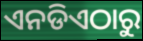
ଏନଡିଏଠାରୁ